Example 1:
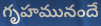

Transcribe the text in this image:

గృహమునందే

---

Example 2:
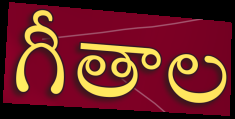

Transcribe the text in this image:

గీతాల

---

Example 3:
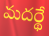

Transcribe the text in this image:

మదర్థే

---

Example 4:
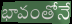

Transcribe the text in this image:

భావంతోనే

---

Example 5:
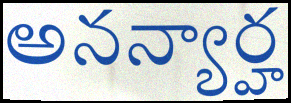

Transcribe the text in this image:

అనన్యార్హ